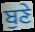
ਬੁਣੇ